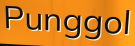
Punggol